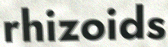
rhizoids